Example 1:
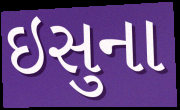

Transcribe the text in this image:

ઇસુના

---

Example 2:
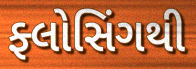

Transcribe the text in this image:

ફ્લોસિંગથી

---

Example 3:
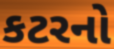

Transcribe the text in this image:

કટરનો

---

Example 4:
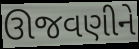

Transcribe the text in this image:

ઊજવણીને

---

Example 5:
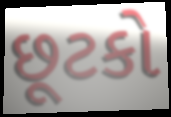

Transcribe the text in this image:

છૂટકો